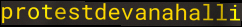
protestdevanahalli